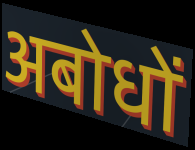
अबोधों